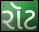
રૉટ